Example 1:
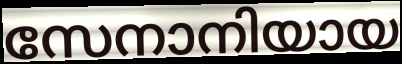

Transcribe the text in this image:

സേനാനിയായ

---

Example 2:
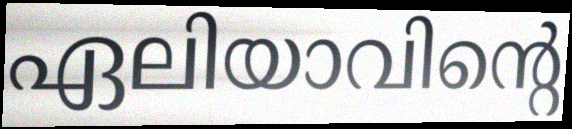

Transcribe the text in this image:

ഏലിയാവിന്റെ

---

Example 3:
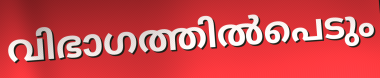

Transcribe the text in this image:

വിഭാഗത്തിൽപെടും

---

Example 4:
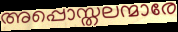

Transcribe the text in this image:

അപ്പൊസ്തലന്മാരേ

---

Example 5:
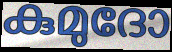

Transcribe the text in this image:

കുമുദോ